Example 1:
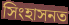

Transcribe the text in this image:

সিংহাসনত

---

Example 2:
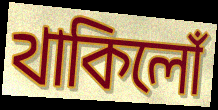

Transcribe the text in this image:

থাকিলোঁ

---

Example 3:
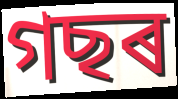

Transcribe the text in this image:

গছৰ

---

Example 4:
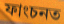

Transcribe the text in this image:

ফাংচনত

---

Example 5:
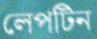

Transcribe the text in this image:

লেপটিন